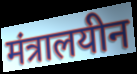
मंत्रालयीन